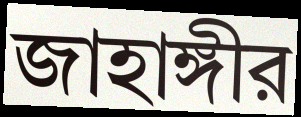
জাহাঙ্গীর